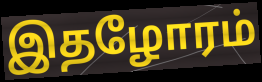
இதழோரம்